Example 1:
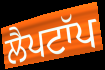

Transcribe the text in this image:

ਲੈਪਟਾੱਪ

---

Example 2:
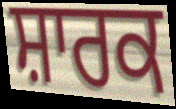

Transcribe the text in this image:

ਸ਼ਾਰਕ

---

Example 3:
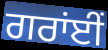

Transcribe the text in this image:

ਗਰਾਂਈਂ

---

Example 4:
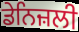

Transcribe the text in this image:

ਡੇਨਿਜ਼ਲੀ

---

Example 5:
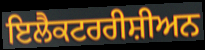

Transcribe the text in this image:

ਇਲੈਕਟਰਰੀਸ਼ੀਅਨ